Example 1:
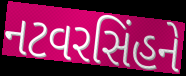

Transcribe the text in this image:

નટવરસિંહને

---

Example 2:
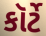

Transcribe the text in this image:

કૉર્ટે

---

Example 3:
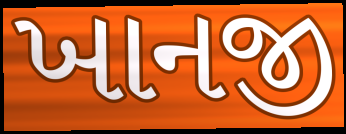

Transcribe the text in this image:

ખાનજી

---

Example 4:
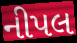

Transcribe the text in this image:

નીપલ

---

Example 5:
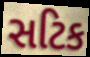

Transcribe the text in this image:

સટિક